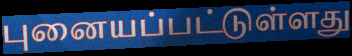
புனையப்பட்டுள்ளது